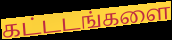
கட்டடங்களை